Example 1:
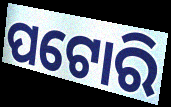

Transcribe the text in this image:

ପଟୋରି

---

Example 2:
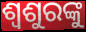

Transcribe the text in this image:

ଶ୍ୱଶୁରଙ୍କୁ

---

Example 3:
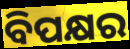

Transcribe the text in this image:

ବିପକ୍ଷର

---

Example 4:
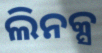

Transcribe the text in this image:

ଲିନକ୍ସ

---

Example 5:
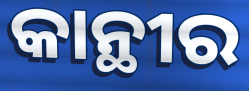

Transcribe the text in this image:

କାନ୍ଥୀର